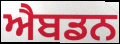
ਐਬਡਨ